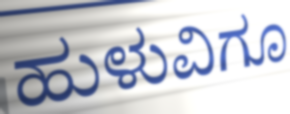
ಹುಳುವಿಗೂ